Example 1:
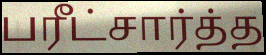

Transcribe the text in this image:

பரீட்சார்த்த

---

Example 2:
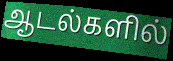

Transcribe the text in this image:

ஆடல்களில்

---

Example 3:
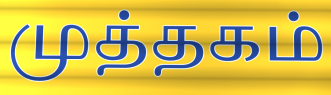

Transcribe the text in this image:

முத்தகம்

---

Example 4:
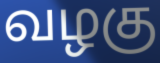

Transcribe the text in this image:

வழகு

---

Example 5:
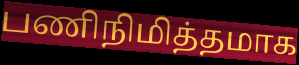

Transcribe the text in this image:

பணிநிமித்தமாக